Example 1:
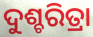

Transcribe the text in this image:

ଦୁଶ୍ଚରିତ୍ରା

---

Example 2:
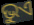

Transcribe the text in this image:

ଭୁଏ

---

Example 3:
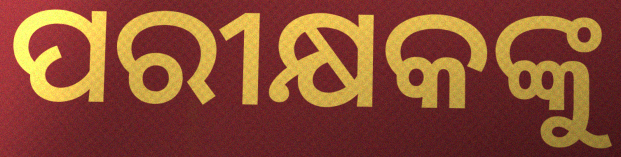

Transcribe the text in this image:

ପରୀକ୍ଷକଙ୍କୁ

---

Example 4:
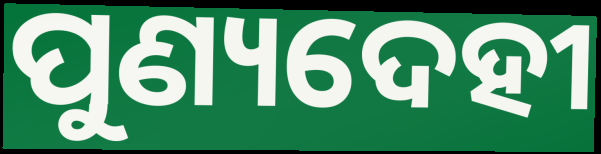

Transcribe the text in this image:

ପୁଣ୍ୟଦେହୀ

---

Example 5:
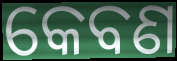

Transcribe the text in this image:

କେବଣ